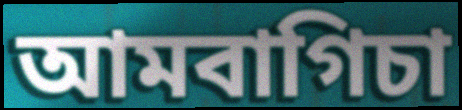
আমবাগিচা